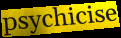
psychicise